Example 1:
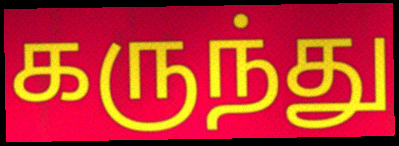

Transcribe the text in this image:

கருந்து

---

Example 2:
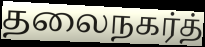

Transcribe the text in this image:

தலைநகர்த்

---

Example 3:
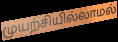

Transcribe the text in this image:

முயற்சியில்லாமல்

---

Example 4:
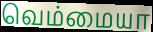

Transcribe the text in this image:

வெம்மையா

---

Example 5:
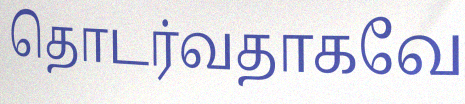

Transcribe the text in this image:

தொடர்வதாகவே